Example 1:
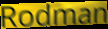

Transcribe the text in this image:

Rodman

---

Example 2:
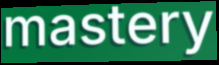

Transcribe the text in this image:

mastery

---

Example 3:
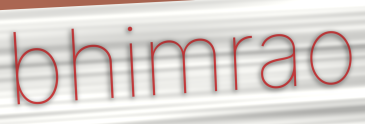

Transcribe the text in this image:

bhimrao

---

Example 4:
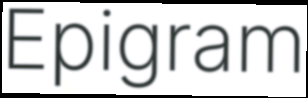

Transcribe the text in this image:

Epigram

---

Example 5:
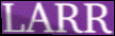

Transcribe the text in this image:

LARR